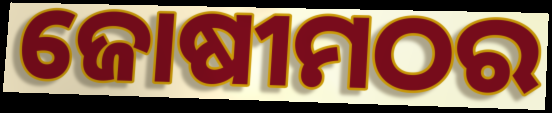
ଜୋଷୀମଠର